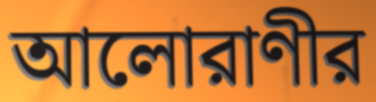
আলোরাণীর